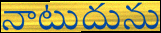
నాటుదును